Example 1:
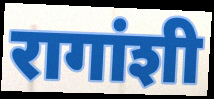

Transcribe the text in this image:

रागांशी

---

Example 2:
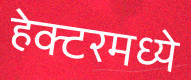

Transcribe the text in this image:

हेक्टरमध्ये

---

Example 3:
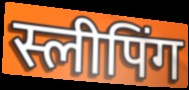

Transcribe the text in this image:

स्लीपिंग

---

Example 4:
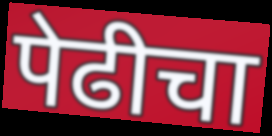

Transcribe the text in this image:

पेढीचा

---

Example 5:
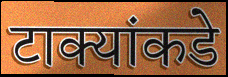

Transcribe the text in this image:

टाक्यांकडे